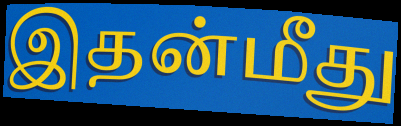
இதன்மீது